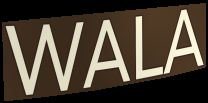
WALA